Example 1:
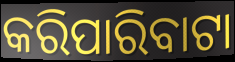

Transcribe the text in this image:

କରିପାରିବାଟା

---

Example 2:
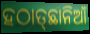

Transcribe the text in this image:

ହଠାତ୍‌ଛାନିଆଁ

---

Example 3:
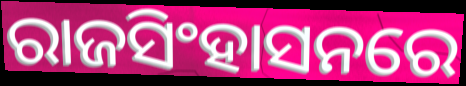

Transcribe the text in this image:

ରାଜସିଂହାସନରେ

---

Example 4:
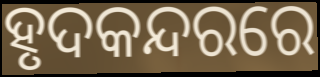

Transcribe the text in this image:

ହୃଦକନ୍ଦରରେ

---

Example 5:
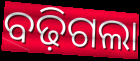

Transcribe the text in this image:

ବଢ଼ିଗଲା